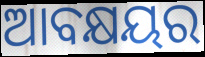
ଆବକ୍ଷୟର